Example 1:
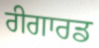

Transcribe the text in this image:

ਰੀਗਾਰਡ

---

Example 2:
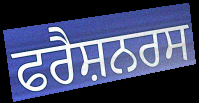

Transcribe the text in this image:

ਫਰੈਸ਼ਨਰਸ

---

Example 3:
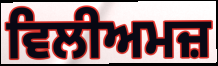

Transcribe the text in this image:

ਵਿਲੀਅਮਜ਼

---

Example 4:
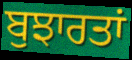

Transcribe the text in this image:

ਬੁਝਾਰਤਾਂ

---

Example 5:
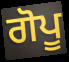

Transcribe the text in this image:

ਗੋਪੂ